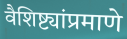
वैशिष्ट्यांप्रमाणे